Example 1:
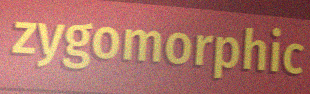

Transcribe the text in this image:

zygomorphic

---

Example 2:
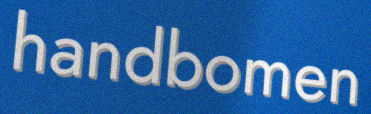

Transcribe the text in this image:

handbomen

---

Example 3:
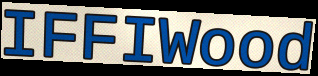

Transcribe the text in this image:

IFFIWood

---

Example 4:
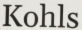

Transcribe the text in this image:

Kohls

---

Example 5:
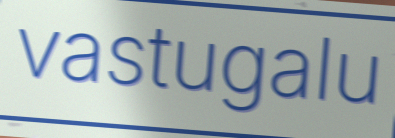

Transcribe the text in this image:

vastugalu